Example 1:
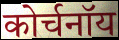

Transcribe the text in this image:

कोर्चनॉय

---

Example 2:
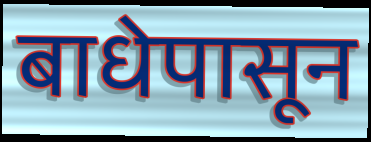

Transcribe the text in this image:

बाधेपासून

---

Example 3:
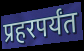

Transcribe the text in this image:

प्रहरपर्यंत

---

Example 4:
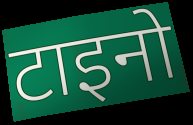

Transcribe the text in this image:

टाइनो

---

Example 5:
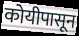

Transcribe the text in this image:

कोयीपासून